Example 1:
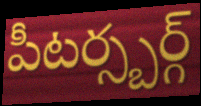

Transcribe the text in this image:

పీటర్స్బర్గ్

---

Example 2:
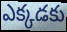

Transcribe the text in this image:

ఎక్కడకు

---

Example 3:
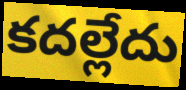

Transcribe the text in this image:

కదల్లేదు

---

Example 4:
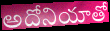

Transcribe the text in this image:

అదోనియాతో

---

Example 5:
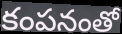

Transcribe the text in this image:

కంపనంతో